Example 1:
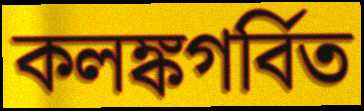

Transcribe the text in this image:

কলঙ্কগর্বিত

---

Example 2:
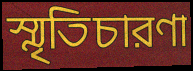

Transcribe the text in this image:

স্মৃতিচারণা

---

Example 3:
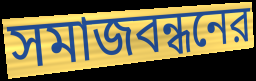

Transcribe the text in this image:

সমাজবন্ধনের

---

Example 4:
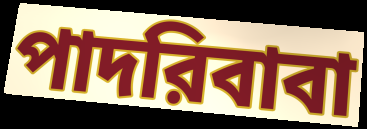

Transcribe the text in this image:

পাদরিবাবা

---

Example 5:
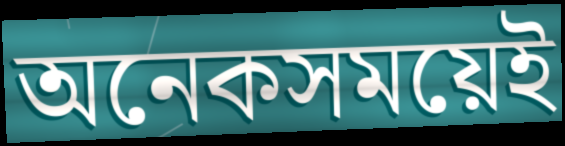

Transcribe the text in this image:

অনেকসময়েই